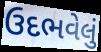
ઉદભવેલું